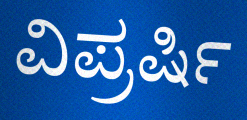
ವಿಪ್ರರ್ಷಿ